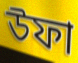
উফা